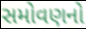
સમોવણનો